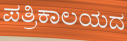
ಪತ್ರಿಕಾಲಯದ